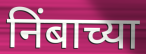
निंबाच्या